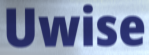
Uwise